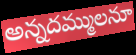
అన్నదమ్ములనూ